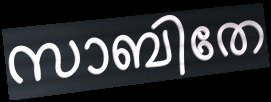
സാബിതേ